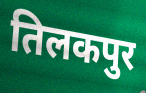
तिलकपुर